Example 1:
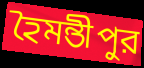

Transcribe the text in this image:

হৈমন্তীপুর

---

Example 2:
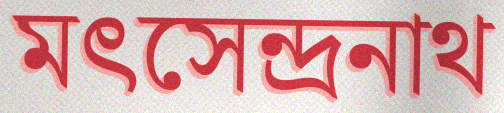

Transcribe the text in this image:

মৎসেন্দ্রনাথ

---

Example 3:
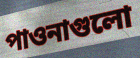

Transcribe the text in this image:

পাওনাগুলো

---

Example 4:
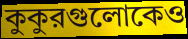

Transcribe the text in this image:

কুকুরগুলোকেও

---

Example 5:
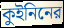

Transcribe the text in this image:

কুইনিনের